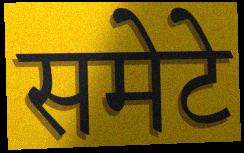
समेटे